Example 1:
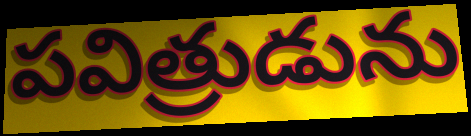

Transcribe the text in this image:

పవిత్రుడును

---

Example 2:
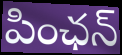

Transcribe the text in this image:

పింఛన్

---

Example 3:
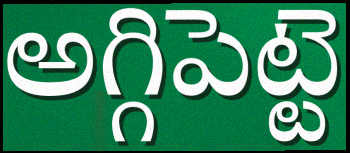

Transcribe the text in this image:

అగ్గిపెట్టె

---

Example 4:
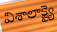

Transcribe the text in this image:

విశాలాక్ష్యై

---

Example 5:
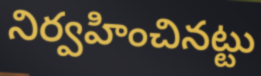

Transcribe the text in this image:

నిర్వహించినట్టు